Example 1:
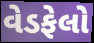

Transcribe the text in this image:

વેડફેલો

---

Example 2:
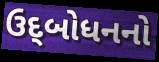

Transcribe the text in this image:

ઉદ્‌બોધનનો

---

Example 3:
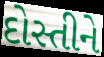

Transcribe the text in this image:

દોસ્તીને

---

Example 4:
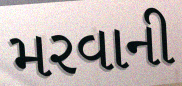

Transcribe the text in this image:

મરવાની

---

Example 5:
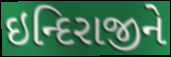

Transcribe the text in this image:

ઇન્દિરાજીને